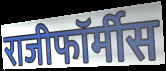
राजीफॉर्मीस